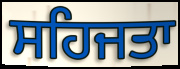
ਸਹਿਜਤਾ